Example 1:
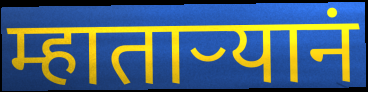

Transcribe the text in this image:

म्हाताऱ्यानं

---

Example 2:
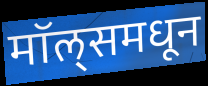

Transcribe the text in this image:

मॉल्समधून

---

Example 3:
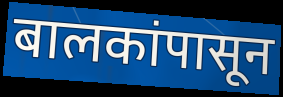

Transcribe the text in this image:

बालकांपासून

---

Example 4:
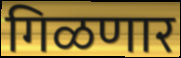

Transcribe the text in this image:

गिळणार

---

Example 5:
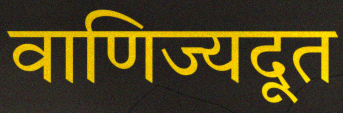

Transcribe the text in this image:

वाणिज्यदूत